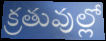
క్రతువుల్లో